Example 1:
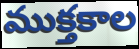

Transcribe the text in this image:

ముక్తకాల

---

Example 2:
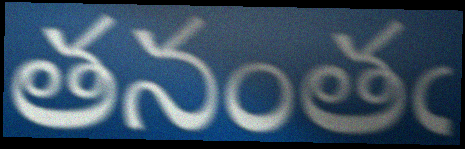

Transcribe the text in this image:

తనంతఁ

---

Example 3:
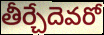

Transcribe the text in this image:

తీర్చేదెవరో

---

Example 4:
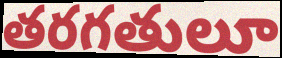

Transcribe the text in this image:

తరగతులూ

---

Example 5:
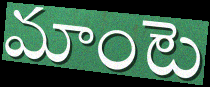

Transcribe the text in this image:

మాంటె